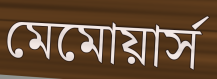
মেমোয়ার্স